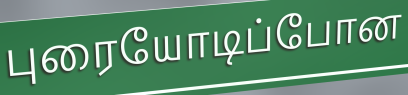
புரையோடிப்போன